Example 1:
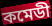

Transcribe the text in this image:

কমেডী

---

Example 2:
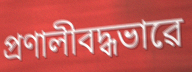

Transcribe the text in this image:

প্ৰণালীবদ্ধভাৱে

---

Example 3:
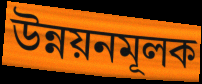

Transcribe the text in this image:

উন্নয়নমূলক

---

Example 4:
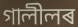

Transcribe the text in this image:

গালীলৰ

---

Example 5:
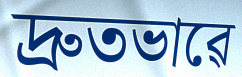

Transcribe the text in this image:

দ্ৰুতভাৱে